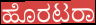
ಹೊರಟರಾ